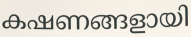
കഷണങ്ങളായി